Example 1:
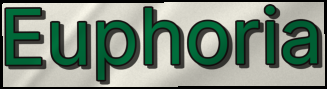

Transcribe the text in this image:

Euphoria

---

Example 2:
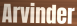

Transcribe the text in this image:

Arvinder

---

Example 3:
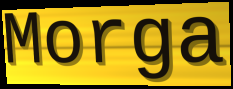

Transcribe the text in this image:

Morga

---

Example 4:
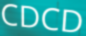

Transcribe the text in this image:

CDCD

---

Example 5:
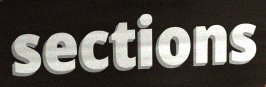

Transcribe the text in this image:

sections